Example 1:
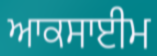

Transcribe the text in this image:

ਆਕਸਾਈਮ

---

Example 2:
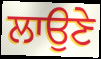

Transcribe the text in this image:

ਲਾਉਣੇ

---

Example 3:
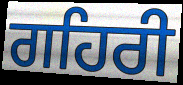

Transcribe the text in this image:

ਗਹਿਰੀ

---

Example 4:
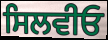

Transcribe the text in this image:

ਸਿਲਵੀਓ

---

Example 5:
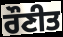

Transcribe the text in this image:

ਰੌਣੀਤ